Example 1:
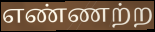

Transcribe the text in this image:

எண்ணற்ற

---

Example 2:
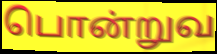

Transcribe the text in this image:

பொன்றுவ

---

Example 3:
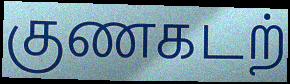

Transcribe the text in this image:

குணகடற்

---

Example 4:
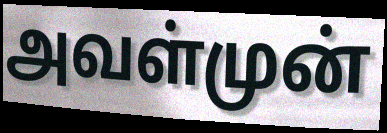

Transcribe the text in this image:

அவள்முன்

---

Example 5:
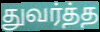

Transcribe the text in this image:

துவர்த்த